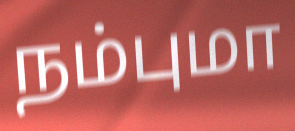
நம்புமா